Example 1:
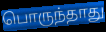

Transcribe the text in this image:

பொருந்தாது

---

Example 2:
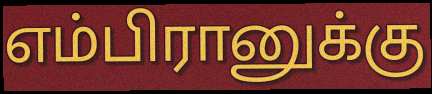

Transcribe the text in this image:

எம்பிரானுக்கு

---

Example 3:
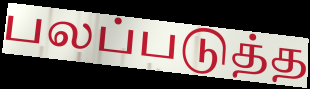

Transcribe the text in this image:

பலப்படுத்த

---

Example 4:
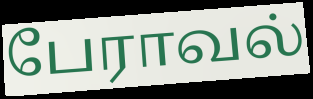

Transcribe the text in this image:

பேராவல்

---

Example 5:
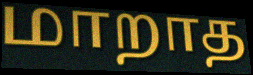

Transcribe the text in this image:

மாறாத